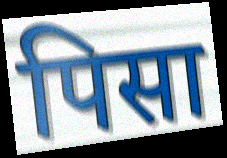
पिसा